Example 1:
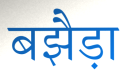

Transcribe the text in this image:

बझैड़ा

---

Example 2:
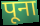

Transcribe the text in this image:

पूना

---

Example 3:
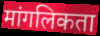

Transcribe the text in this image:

मांगलिकता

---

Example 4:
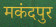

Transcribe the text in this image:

मकंदपुर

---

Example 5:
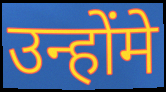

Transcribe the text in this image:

उन्होंमे